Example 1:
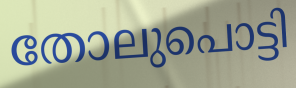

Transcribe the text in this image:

തോലുപൊട്ടി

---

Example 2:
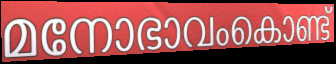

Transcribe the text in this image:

മനോഭാവംകൊണ്ട്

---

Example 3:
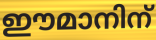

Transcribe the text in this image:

ഈമാനിന്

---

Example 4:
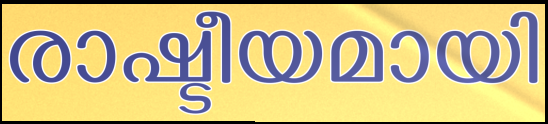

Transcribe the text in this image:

രാഷ്ടീയമായി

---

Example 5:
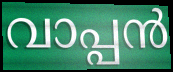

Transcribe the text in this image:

വാപ്പൻ